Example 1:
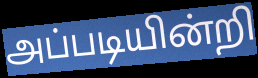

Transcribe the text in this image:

அப்படியின்றி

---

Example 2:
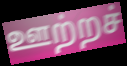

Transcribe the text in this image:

ஊற்றச்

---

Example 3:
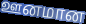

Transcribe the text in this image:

ஊனமான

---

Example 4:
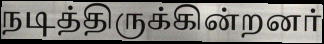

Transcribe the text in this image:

நடித்திருக்கின்றனர்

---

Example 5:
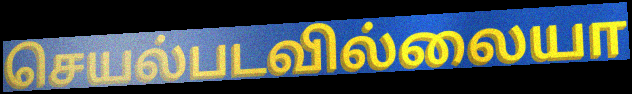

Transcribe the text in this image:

செயல்படவில்லையா